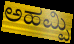
ಅಹಮ್ಪಿ